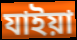
যাইয়া